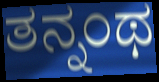
ತನ್ನಂಥ